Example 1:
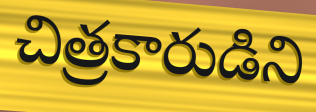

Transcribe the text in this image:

చిత్రకారుడిని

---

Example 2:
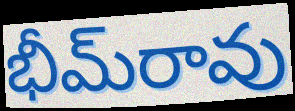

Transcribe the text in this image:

భీమ్‌రావు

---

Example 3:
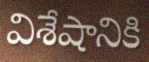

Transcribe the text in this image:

విశేషానికి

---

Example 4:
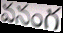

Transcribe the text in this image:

వనంగ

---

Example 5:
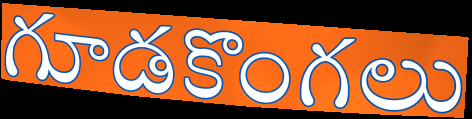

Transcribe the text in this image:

గూడకొంగలు